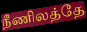
நீணிலத்தே